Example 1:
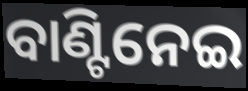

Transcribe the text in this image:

ବାଣ୍ଟିନେଇ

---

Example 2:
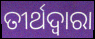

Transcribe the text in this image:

ତୀର୍ଥଦ୍ବାରା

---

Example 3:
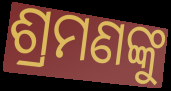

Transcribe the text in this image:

ଶ୍ରମଣଙ୍କୁ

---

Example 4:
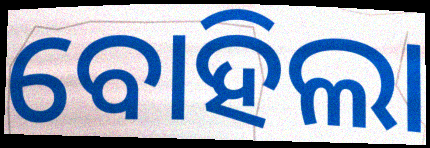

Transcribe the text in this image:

ବୋହିଲା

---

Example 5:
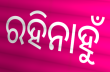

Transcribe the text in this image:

ରହିନାହୁଁ